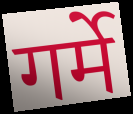
गर्मे